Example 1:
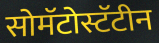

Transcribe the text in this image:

सोमॅटोस्टॅटीन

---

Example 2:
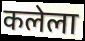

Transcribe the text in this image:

कलेला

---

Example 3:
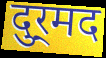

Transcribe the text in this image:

दुर्मद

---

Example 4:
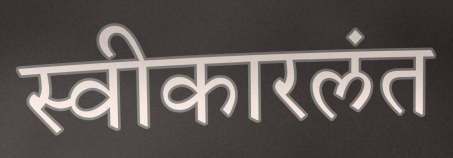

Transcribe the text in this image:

स्वीकारलंत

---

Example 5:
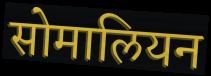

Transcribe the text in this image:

सोमालियन